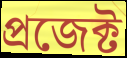
প্রজেক্ট